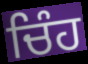
ਚਿੰਹ